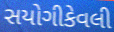
સયોગીકેવલી